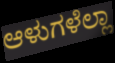
ಆಳುಗಳೆಲ್ಲಾ